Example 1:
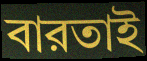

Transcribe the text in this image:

বারতাই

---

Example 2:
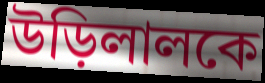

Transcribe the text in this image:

উড়িলালকে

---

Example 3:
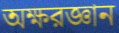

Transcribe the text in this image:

অক্ষরজ্ঞান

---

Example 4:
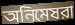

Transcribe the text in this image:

অনিমেষরা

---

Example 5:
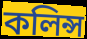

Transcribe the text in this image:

কলিন্স